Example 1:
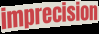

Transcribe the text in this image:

imprecision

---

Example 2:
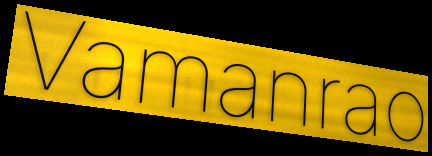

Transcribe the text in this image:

Vamanrao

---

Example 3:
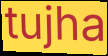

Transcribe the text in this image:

tujha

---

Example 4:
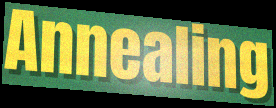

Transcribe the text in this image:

Annealing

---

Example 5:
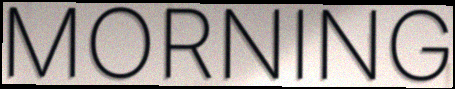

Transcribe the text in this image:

MORNING